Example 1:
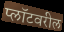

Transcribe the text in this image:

प्लॉटवरील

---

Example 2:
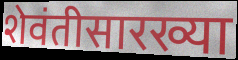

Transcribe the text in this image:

शेवंतीसारख्या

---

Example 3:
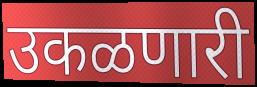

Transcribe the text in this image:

उकळणारी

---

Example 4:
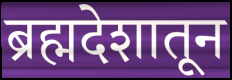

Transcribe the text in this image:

ब्रह्मदेशातून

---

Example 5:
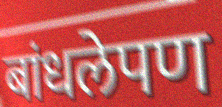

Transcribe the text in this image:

बांधलेपण